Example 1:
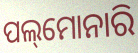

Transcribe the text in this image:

ପଲ୍‌ମୋନାରି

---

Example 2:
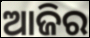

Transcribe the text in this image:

ଆଜିର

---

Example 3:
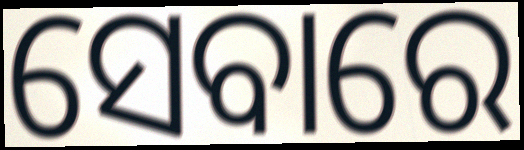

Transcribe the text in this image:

ସେବାରେ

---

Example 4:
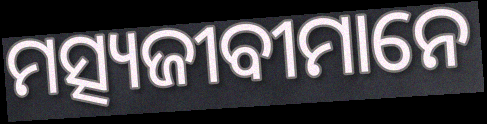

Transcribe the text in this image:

ମତ୍ସ୍ୟଜୀବୀମାନେ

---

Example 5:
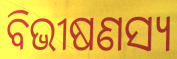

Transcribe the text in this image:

ବିଭୀଷଣସ୍ୟ